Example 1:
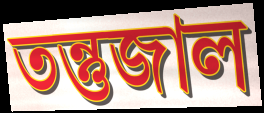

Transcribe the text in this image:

তন্তুজাল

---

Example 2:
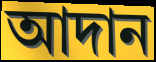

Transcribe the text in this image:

আদান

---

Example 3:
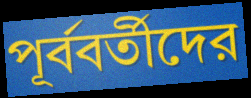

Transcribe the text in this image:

পূর্ববর্তীদের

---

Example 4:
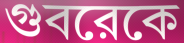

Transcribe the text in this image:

গুবরেকে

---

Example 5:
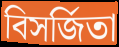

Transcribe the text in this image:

বিসর্জিতা